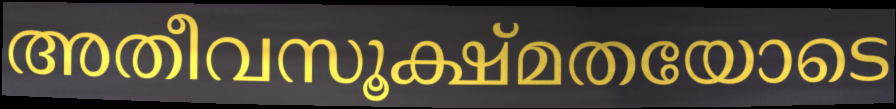
അതീവസൂക്ഷ്മതയോടെ